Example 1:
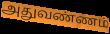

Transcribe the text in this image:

அதுவண்ணம்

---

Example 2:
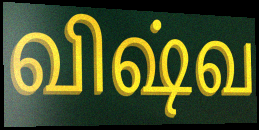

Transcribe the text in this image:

விஷ்வ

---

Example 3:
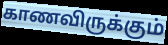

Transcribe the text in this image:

காணவிருக்கும்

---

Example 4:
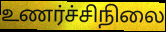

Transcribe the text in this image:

உணர்ச்சிநிலை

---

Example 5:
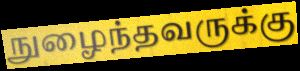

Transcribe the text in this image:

நுழைந்தவருக்கு